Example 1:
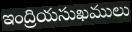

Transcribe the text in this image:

ఇంద్రియసుఖములు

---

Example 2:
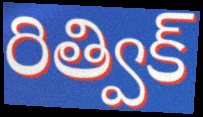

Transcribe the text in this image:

రిత్విక్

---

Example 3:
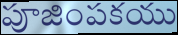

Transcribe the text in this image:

పూజింపకయు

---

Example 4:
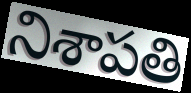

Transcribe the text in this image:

నిశాపతి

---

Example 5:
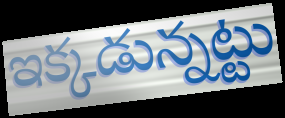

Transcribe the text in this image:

ఇక్కడున్నట్టు